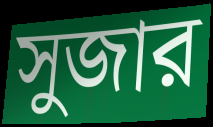
সুজার